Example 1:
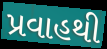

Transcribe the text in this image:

પ્રવાહથી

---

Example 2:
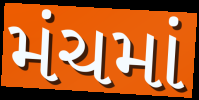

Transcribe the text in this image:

મંચમાં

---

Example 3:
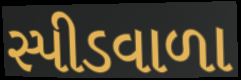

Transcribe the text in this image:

સ્પીડવાળા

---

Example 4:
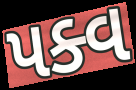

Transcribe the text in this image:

પક્વ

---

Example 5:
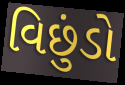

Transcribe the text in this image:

વિછુંડો